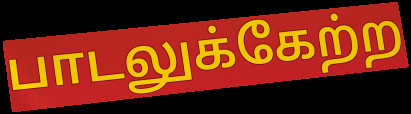
பாடலுக்கேற்ற